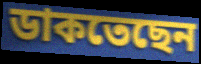
ডাকতেছেন